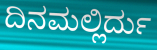
ದಿನಮಲ್ಲಿರ್ದು